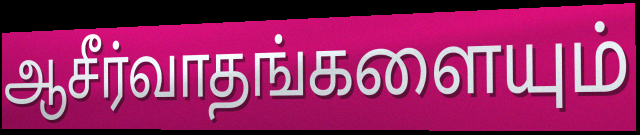
ஆசீர்வாதங்களையும்